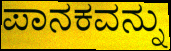
ಪಾನಕವನ್ನು